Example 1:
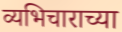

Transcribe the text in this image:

व्यभिचाराच्या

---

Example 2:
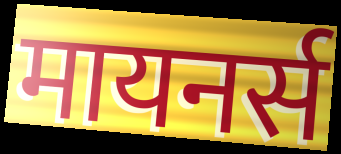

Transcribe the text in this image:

मायनर्स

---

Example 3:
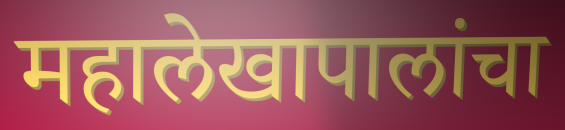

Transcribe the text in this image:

महालेखापालांचा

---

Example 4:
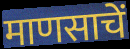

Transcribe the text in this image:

माणसाचें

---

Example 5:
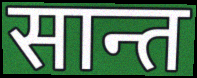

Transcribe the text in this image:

सान्त